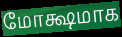
மோக்ஷமாக